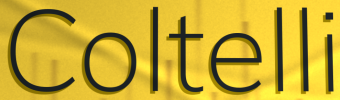
Coltelli